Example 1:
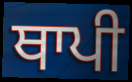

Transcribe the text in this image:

ਥਾਪੀ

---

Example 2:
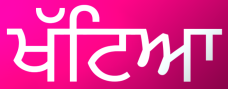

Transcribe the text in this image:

ਖੱਟਿਆ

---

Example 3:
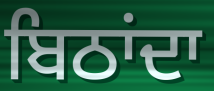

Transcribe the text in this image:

ਬਿਠਾਂਦਾ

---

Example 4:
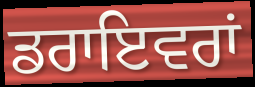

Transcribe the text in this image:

ਡਰਾਇਵਰਾਂ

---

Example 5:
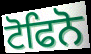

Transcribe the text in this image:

ਟੋਫਿਨੋ